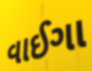
વાઈગા